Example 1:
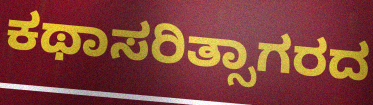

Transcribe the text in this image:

ಕಥಾಸರಿತ್ಸಾಗರದ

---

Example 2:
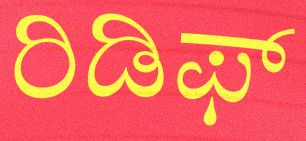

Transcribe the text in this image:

ರಿಡಿಫ್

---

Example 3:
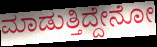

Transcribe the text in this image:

ಮಾಡುತ್ತಿದ್ದೇನೋ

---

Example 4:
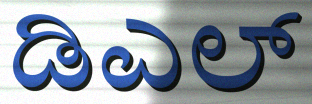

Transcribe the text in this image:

ಡಿಎಲ್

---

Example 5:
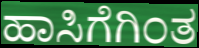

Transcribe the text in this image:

ಹಾಸಿಗೆಗಿಂತ